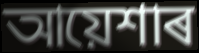
আয়েশাৰ